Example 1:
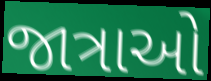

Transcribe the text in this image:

જાત્રાઓ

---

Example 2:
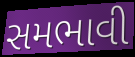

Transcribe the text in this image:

સમભાવી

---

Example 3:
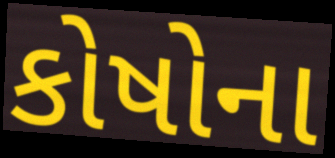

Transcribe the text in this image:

કોષોના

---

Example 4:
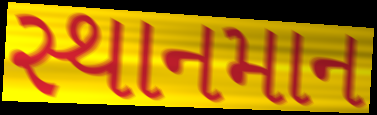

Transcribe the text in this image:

સ્થાનમાન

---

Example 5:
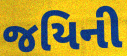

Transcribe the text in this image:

જયિની